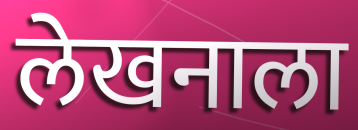
लेखनाला